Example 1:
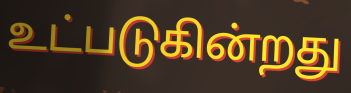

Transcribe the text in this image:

உட்படுகின்றது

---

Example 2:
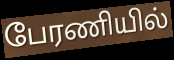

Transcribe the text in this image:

பேரணியில்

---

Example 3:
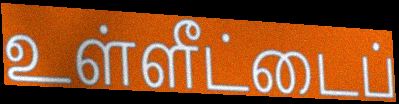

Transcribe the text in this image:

உள்ளீட்டைப்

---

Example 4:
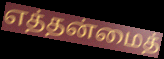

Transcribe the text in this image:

எத்தன்மைத்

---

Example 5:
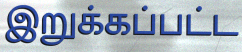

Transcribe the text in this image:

இறுக்கப்பட்ட